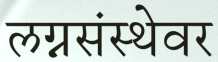
लग्नसंस्थेवर